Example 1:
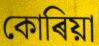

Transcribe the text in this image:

কোৰিয়া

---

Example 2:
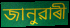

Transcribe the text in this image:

জানুৱাৰী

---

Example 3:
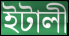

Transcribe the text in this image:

ইটালী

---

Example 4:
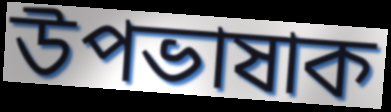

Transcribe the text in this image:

উপভাষাক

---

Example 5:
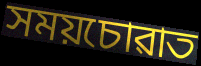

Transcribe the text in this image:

সময়চোৱাত